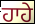
ਹਾਹੇ